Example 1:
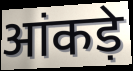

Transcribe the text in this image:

आंकड़े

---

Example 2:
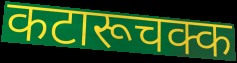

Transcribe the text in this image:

कटारूचक्क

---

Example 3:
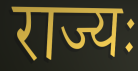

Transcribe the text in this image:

राज्यः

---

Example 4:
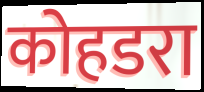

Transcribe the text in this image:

कोहडरा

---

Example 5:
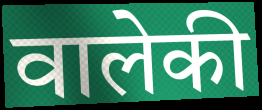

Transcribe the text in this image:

वालेकी